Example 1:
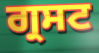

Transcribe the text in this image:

ਗ੍ਰਸਟ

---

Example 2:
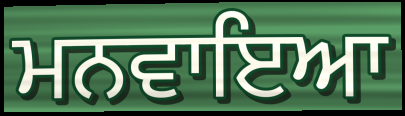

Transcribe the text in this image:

ਮਨਵਾਇਆ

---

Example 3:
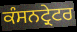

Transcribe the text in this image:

ਕੰਸਨਟ੍ਰੇਟਰ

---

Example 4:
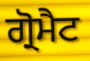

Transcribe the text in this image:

ਗ੍ਰੋਮੈਟ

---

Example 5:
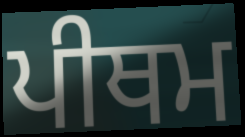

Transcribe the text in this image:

ਪੀਥਮ